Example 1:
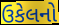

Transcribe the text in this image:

ઉકેલનો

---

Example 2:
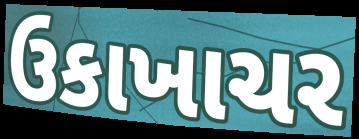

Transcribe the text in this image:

ઉકાખાચર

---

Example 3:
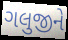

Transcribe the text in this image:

ગલુજીને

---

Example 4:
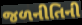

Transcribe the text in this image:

જળનીતિની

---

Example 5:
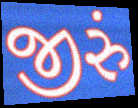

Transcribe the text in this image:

જીરું